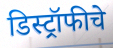
डिस्ट्रॉफीचे